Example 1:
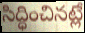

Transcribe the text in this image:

సిద్ధించినట్లే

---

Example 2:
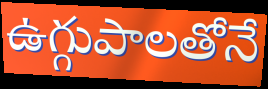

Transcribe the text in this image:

ఉగ్గుపాలతోనే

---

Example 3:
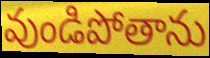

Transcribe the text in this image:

వుండిపోతాను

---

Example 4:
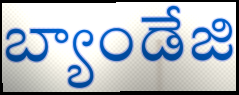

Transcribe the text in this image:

బ్యాండేజి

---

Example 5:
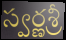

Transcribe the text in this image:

స్వర్ణశ్రీ